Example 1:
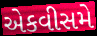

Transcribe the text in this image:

એકવીસમે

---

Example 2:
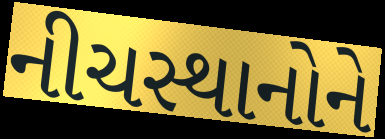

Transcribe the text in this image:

નીચસ્થાનોને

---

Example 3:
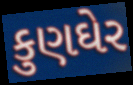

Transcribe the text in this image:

કુણઘેર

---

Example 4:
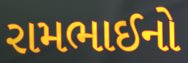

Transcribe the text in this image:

રામભાઈનો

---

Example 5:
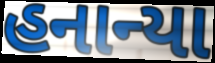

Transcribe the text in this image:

હનાન્યા